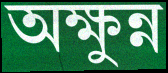
অক্ষুন্ন